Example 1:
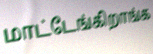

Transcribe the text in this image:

மாட்டேங்கிறாங்க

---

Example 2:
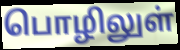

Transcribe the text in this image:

பொழிலுள்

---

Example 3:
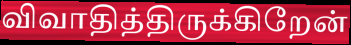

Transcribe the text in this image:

விவாதித்திருக்கிறேன்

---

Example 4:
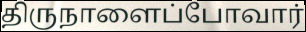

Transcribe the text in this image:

திருநாளைப்போவார்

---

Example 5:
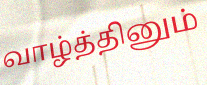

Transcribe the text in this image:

வாழ்த்தினும்